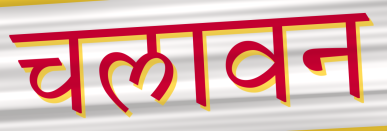
चलावन